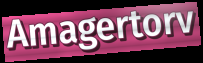
Amagertorv